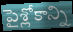
పైశ్లోకాన్ని